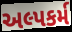
અલ્પકર્મ